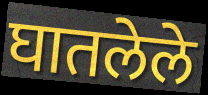
घातलेले